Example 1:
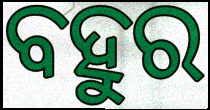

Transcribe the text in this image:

ବହୁର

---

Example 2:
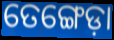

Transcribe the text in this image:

ତେଙ୍ଗେଡ଼ା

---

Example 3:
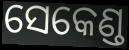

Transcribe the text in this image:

ସେକେଣ୍ଡ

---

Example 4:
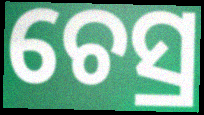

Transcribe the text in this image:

ଚେସ୍ର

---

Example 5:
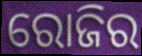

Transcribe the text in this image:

ରୋଜିର